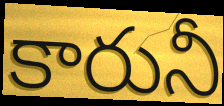
కారునీ